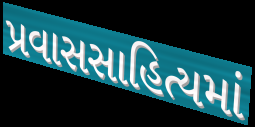
પ્રવાસસાહિત્યમાં